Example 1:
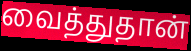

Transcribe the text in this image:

வைத்துதான்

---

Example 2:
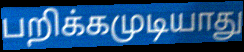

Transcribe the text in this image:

பறிக்கமுடியாது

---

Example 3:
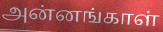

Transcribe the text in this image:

அன்னங்காள்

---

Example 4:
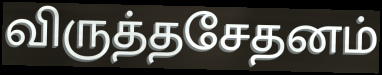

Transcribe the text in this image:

விருத்தசேதனம்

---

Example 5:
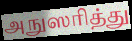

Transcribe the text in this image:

அநுஸரித்து